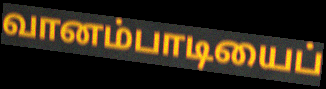
வானம்பாடியைப்